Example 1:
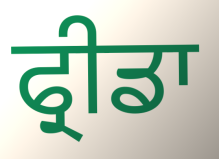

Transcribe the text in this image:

ਫ੍ਰੀਡਾ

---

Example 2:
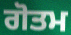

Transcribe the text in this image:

ਗੋਤਮ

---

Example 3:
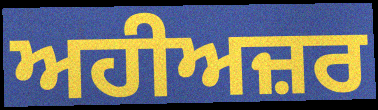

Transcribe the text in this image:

ਅਹੀਅਜ਼ਰ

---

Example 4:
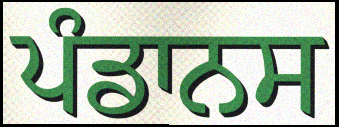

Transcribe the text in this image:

ਪੰਡਾਨਸ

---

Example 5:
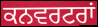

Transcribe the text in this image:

ਕਨਵਰਟਰਾਂ